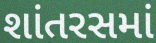
શાંતરસમાં